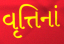
વૃત્તિનાં